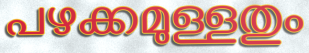
പഴക്കമുള്ളതും